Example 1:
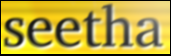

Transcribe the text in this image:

seetha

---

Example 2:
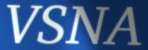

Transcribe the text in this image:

VSNA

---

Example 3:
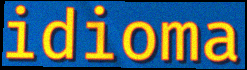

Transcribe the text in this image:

idioma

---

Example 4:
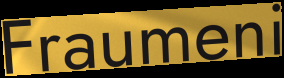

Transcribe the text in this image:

Fraumeni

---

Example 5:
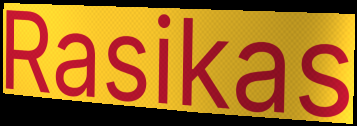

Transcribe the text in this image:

Rasikas